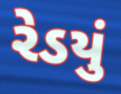
રેડયું